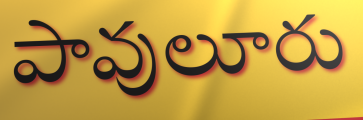
పావులూరు